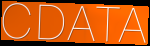
CDATA